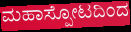
ಮಹಾಸ್ಪೋಟದಿಂದ